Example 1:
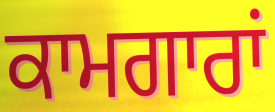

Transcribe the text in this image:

ਕਾਮਗਾਰਾਂ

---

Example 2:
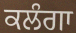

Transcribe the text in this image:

ਕਲੰਗਾ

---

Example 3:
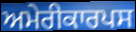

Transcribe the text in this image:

ਅਮੇਰੀਕਾਰਪਸ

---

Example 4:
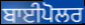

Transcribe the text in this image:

ਬਾਈਪੋਲਰ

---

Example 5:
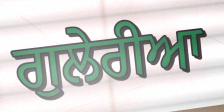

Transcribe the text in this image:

ਗੁਲੇਰੀਆ